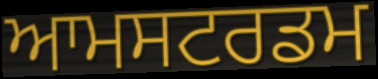
ਆਮਸਟਰਡਮ